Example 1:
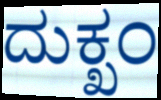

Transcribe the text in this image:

ದುಕ್ಖಂ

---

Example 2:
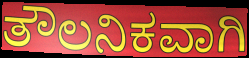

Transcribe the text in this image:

ತೌಲನಿಕವಾಗಿ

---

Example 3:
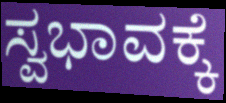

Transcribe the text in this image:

ಸ್ವಭಾವಕ್ಕೆ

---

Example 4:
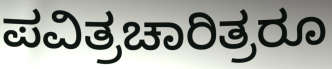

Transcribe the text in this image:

ಪವಿತ್ರಚಾರಿತ್ರರೂ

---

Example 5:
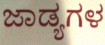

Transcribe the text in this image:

ಜಾಡ್ಯಗಳ